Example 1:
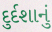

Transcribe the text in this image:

દુર્દશાનું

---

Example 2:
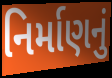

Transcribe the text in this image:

નિર્માણનું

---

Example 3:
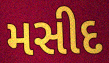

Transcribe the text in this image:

મસીદ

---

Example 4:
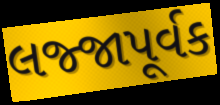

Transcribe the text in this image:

લજ્જાપૂર્વક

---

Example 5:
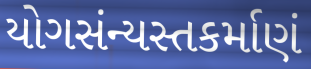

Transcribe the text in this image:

યોગસંન્યસ્તકર્માણં